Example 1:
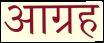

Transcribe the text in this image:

आग्रह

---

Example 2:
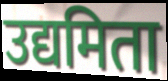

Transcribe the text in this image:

उद्यमिता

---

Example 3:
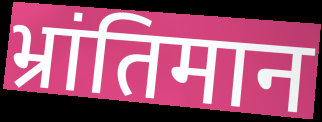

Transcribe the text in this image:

भ्रांतिमान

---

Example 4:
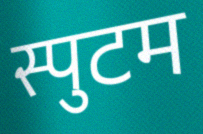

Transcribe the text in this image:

स्पुटम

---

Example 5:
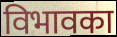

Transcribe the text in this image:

विभावका